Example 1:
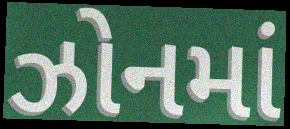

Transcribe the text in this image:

ઝોનમાં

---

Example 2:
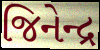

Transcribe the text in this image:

જિનેન્દ્ર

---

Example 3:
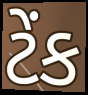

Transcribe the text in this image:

ટેંક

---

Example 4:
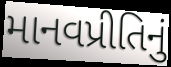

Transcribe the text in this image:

માનવપ્રીતિનું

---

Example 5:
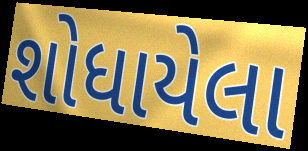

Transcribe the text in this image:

શોધાયેલા